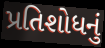
પ્રતિશોધનું